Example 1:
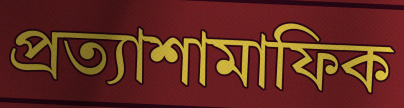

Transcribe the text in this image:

প্রত্যাশামাফিক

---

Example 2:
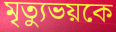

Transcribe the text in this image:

মৃত্যুভয়কে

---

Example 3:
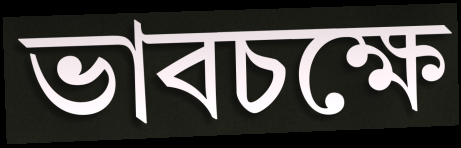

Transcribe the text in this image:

ভাবচক্ষে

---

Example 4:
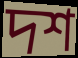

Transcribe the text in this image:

দশ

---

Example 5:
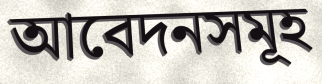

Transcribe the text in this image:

আবেদনসমূহ